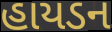
હાયડન